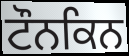
ਟੌਨਕਿਨ